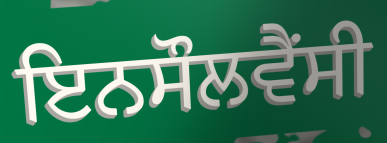
ਇਨਸੌਲਵੈਂਸੀ